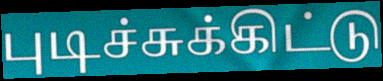
புடிச்சுக்கிட்டு